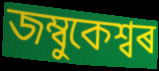
জম্বুকেশ্বৰ